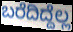
ಬರೆದಿದ್ದೆಲ್ಲ